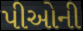
પીઓની